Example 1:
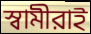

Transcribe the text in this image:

স্বামীরাই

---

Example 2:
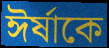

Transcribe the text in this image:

ঈর্ষাকে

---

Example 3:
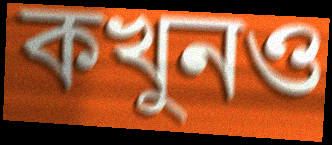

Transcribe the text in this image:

কখুনও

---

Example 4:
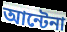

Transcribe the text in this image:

আন্টেনা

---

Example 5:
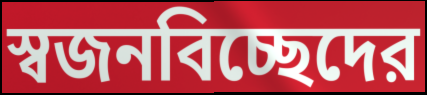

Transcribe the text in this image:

স্বজনবিচ্ছেদের